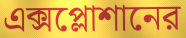
এক্সপ্লোশানের